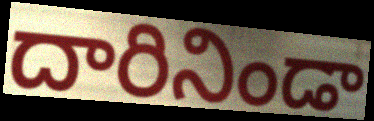
దారినిండా